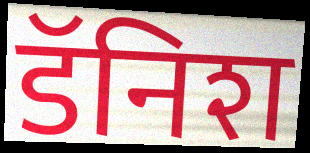
डॅनिश